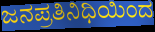
ಜನಪ್ರತಿನಿಧಿಯಿಂದ